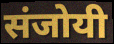
संजोयी